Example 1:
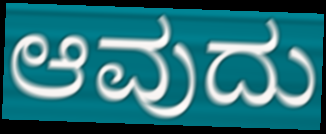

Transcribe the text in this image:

ಆವುದು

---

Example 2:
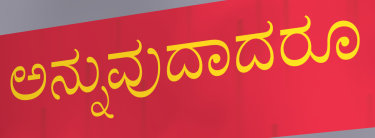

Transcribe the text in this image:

ಅನ್ನುವುದಾದರೂ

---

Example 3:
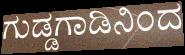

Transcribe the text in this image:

ಗುಡ್ಡಗಾಡಿನಿಂದ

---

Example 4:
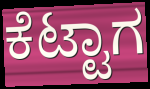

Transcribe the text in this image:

ಕೆಟ್ಟಾಗ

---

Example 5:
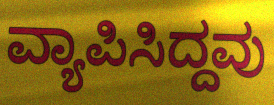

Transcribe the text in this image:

ವ್ಯಾಪಿಸಿದ್ದವು